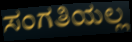
ಸಂಗತಿಯಲ್ಲ